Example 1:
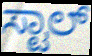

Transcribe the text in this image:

ಸ್ಟಾಲ್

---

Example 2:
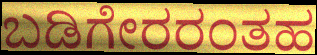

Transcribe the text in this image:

ಬಡಿಗೇರರಂತಹ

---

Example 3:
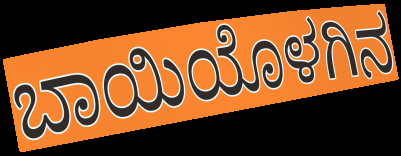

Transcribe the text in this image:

ಬಾಯಿಯೊಳಗಿನ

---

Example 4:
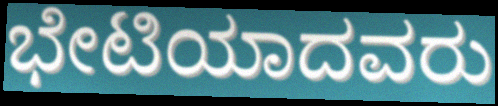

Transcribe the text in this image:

ಭೇಟಿಯಾದವರು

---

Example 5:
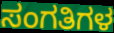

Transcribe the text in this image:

ಸಂಗತಿಗಳ